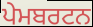
ਪੇਮਬਰਟਨ